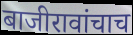
बाजीरावांचाच